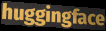
huggingface